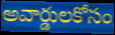
అవార్డులకోసం